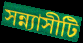
সন্ন্যাসীটি